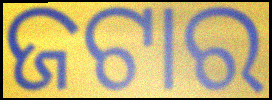
ଜଟାର